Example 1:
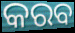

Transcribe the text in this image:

କରବ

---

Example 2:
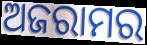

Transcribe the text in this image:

ଅଜରାମର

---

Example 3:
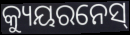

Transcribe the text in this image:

କ୍ୟୁୟରନେସ୍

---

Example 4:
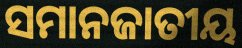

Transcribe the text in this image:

ସମାନଜାତୀୟ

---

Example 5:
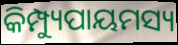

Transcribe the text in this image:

କିମ୍ପ୍ୟୁପାୟମସ୍ୟ